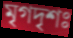
মৃগদৃশঃ